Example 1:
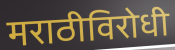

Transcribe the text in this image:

मराठीविरोधी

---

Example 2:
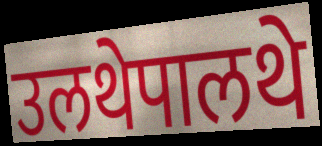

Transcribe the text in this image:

उलथेपालथे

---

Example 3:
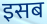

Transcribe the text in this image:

इसब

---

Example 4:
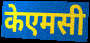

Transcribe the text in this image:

केएमसी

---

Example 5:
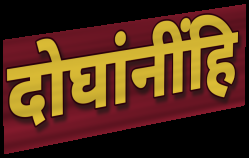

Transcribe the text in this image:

दोघांनींहि